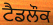
ਟੈਡਲੌਕ